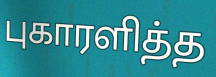
புகாரளித்த